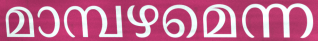
മാമ്പഴമെന്ന